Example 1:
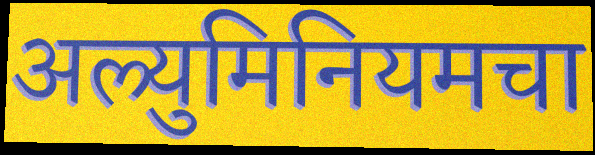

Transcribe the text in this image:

अल्युमिनियमचा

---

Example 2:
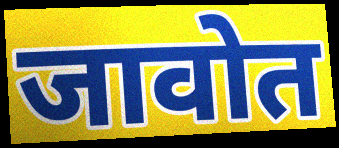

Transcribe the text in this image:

जावोत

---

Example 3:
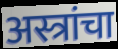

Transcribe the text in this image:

अस्त्रांचा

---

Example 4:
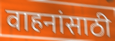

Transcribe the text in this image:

वाहनांसाठी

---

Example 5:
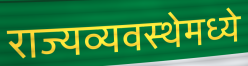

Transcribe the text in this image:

राज्यव्यवस्थेमध्ये